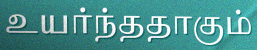
உயர்ந்ததாகும்